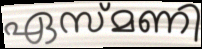
ഏസ്മണി